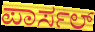
ಪಾರ್ಸಲ್